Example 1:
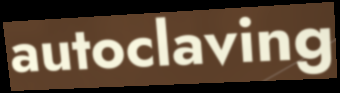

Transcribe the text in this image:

autoclaving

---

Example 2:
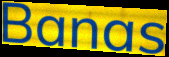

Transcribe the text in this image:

Banas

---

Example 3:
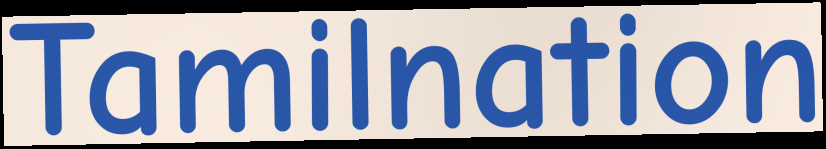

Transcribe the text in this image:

Tamilnation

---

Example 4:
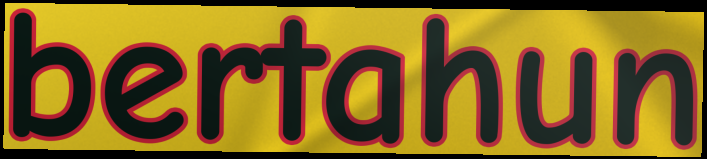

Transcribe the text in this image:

bertahun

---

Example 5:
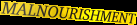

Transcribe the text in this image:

MALNOURISHMENT